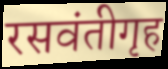
रसवंतीगृह